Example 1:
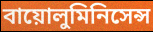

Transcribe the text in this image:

বায়োলুমিনিসেন্স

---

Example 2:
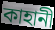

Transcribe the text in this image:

কাহানী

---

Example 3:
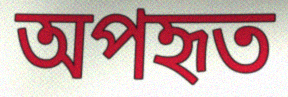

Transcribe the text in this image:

অপহৃত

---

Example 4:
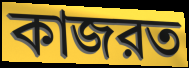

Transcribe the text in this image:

কাজরত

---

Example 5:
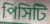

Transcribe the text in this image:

পিসিটি